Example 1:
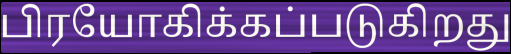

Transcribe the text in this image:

பிரயோகிக்கப்படுகிறது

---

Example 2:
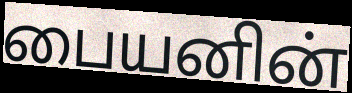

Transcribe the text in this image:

பையனின்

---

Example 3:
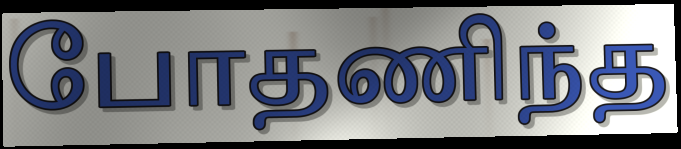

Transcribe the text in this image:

போதணிந்த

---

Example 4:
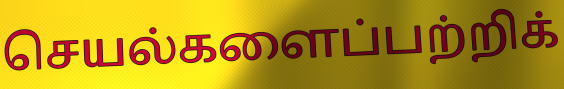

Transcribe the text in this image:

செயல்களைப்பற்றிக்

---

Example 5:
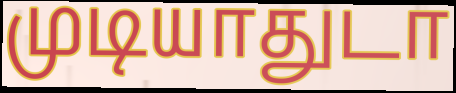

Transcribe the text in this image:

முடியாதுடா